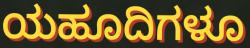
ಯಹೂದಿಗಳೂ